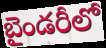
బైండరీలో